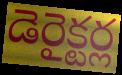
డెరైక్టర్ల